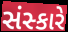
સંસ્કારે